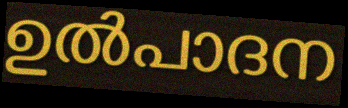
ഉൽപാദന